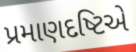
પ્રમાણદષ્ટિએ